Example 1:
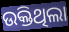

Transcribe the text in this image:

ଉକ୍ତିଥିଲା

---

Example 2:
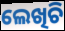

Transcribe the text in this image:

ଲେଖିଚି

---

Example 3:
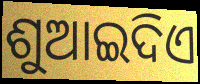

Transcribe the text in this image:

ଶୁଆଇଦିଏ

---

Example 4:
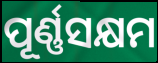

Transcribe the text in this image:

ପୂର୍ଣ୍ଣସକ୍ଷମ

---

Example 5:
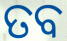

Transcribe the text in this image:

ତବ